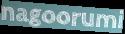
nagoorumi